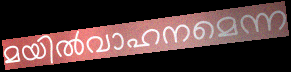
മയിൽവാഹനമെന്ന